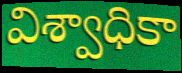
విశ్వాధికా